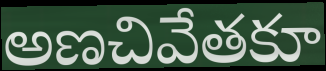
అణచివేతకూ